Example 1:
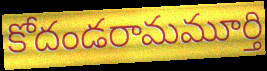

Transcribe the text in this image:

కోదండరామమూర్తి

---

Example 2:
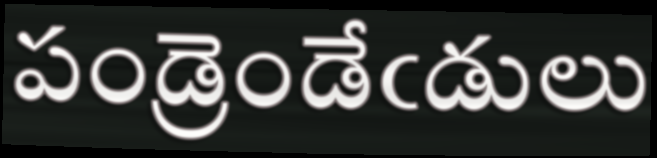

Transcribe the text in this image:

పండ్రెండేఁడులు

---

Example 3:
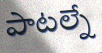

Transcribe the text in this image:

పాటల్నే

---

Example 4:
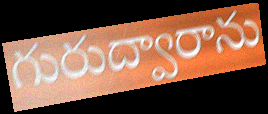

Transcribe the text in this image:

గురుద్వారాను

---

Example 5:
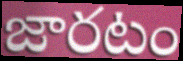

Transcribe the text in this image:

జారటం